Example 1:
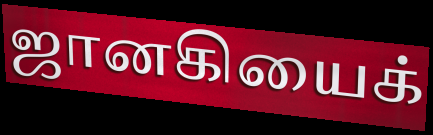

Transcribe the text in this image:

ஜானகியைக்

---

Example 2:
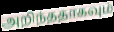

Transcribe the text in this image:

அறிந்ததாகவும்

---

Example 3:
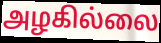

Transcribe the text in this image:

அழகில்லை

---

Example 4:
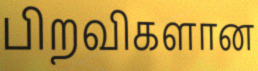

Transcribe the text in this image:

பிறவிகளான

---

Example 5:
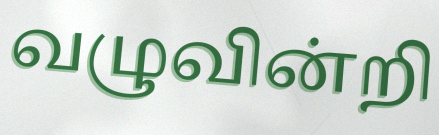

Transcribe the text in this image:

வழுவின்றி